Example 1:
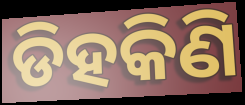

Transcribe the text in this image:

ଡିହକିଣି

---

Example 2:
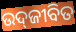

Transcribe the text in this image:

ଉଦ୍‍ଜୀବିତ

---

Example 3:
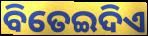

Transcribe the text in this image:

ବିତେଇଦିଏ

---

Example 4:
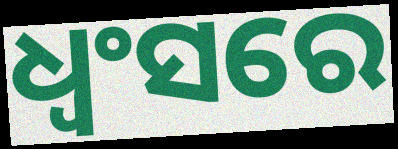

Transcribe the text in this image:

ଧ୍ଵଂସରେ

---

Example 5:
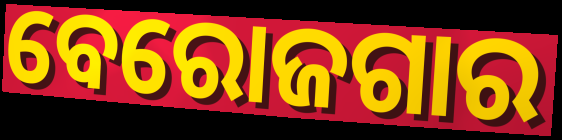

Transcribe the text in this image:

ବେରୋଜଗାର